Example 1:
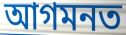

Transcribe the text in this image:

আগমনত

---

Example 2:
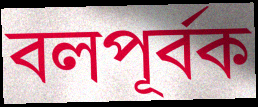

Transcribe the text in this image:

বলপূৰ্বক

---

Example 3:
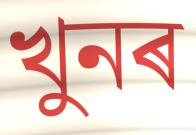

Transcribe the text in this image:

খুনৰ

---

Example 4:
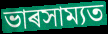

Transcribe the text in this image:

ভাৰসাম্যত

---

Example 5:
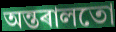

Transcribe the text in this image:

অন্তৰালতো